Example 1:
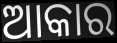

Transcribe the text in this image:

ଆକାର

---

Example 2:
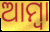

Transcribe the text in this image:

ଆମ୍ବା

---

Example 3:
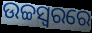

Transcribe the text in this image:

ଉଚ୍ଚସ୍ୱରରେ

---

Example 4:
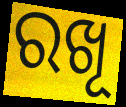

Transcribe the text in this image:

ରଖୂ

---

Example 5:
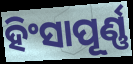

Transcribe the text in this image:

ହିଂସାପୂର୍ଣ୍ଣ